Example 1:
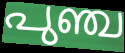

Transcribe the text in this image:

പുഞ്ച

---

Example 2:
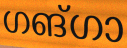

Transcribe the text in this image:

ഗങ്ഗാ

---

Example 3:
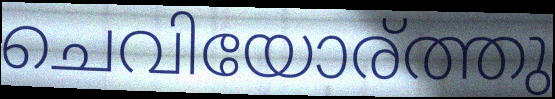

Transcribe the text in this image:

ചെവിയോര്ത്തു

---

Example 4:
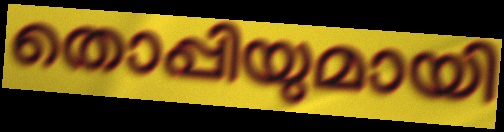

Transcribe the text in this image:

തൊപ്പിയുമായി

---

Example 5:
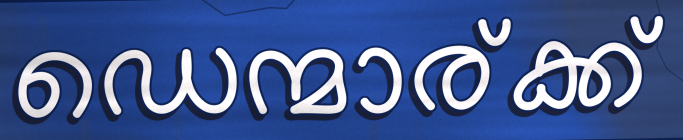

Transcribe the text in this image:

ഡെന്മാര്ക്ക്